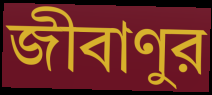
জীবাণুর